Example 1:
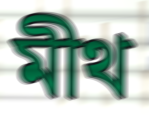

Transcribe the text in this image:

মীথ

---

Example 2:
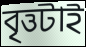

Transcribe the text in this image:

বৃত্তটাই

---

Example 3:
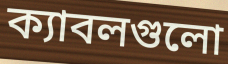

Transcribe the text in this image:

ক্যাবলগুলো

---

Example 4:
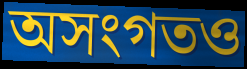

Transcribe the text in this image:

অসংগতও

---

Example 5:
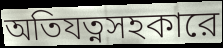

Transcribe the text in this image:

অতিযত্নসহকারে